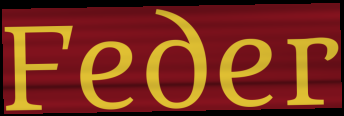
Feder